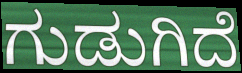
ಗುಡುಗಿದೆ